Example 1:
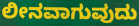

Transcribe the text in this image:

ಲೀನವಾಗುವುದು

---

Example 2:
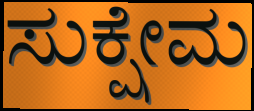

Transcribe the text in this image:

ಸುಕ್ಷೇಮ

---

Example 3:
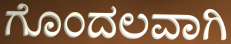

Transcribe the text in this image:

ಗೊಂದಲವಾಗಿ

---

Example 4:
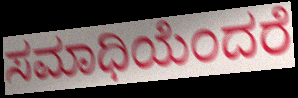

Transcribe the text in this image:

ಸಮಾಧಿಯೆಂದರೆ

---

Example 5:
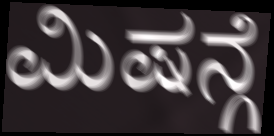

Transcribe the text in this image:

ಮಿಷನ್ಗೆ